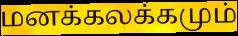
மனக்கலக்கமும்